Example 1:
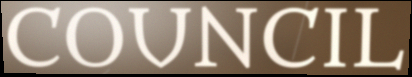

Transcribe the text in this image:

COUNCIL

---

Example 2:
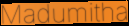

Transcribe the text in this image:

Madumitha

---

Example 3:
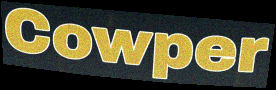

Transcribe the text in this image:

Cowper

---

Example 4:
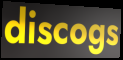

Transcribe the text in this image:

discogs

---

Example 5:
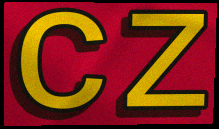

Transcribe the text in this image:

cz